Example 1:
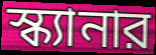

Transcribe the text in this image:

স্ক্যানার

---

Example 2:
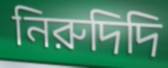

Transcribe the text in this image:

নিরুদিদি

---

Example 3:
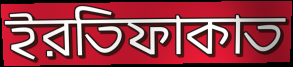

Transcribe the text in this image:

ইরতিফাকাত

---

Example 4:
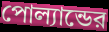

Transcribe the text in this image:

পোল্যান্ডের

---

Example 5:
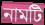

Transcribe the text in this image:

নামটি